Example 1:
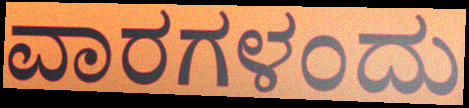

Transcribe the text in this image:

ವಾರಗಳಂದು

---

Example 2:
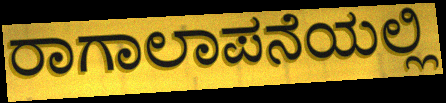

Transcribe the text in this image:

ರಾಗಾಲಾಪನೆಯಲ್ಲಿ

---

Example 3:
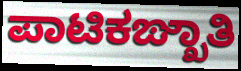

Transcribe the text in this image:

ಪಾಟಿಕಙ್ಖಾತಿ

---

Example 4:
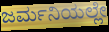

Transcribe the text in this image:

ಜರ್ಮನಿಯಲ್ಲೇ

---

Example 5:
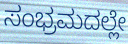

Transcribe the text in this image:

ಸಂಭ್ರಮದಲ್ಲೇ